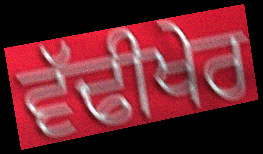
ਵੱਢੀਖੇਰ